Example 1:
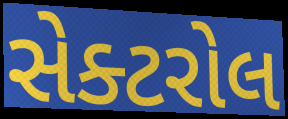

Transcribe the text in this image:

સેક્ટરોલ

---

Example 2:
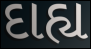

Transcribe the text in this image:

દાહ્ય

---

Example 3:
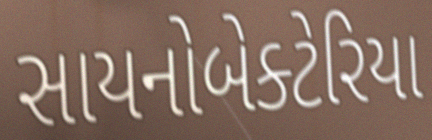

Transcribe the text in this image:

સાયનોબેક્ટેરિયા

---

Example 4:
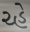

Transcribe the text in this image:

ચ્હે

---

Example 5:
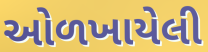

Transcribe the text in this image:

ઓળખાયેલી